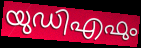
യുഡിഎഫും